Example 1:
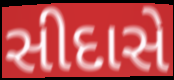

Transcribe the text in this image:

સીદાસે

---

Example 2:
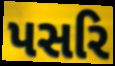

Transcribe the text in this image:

પસરિ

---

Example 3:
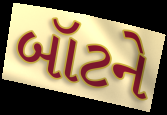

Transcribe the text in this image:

બૉટને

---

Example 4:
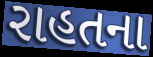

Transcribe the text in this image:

રાહતના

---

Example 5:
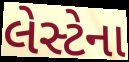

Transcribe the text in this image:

લેસ્ટેના